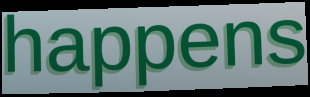
happens